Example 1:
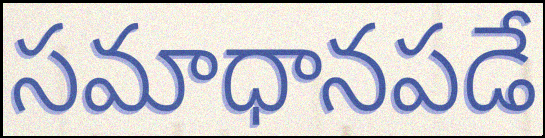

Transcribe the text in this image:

సమాధానపడే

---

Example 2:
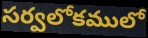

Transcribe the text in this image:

సర్వలోకములో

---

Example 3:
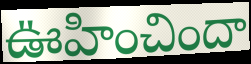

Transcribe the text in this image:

ఊహించిందా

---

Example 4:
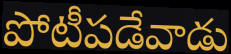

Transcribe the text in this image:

పోటీపడేవాడు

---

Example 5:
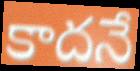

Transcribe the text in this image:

కాదనే